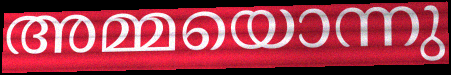
അമ്മയൊന്നു